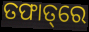
ତଫାତ୍‌ରେ